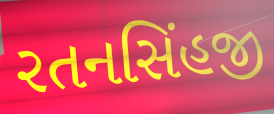
રતનસિંહજી